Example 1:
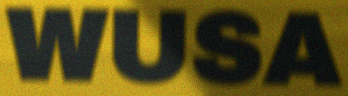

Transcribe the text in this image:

WUSA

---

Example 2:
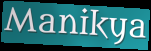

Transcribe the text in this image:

Manikya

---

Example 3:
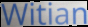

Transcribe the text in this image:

Witian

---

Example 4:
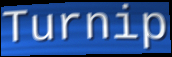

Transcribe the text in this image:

Turnip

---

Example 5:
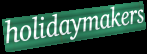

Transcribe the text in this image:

holidaymakers